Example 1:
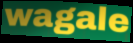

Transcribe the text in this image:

wagale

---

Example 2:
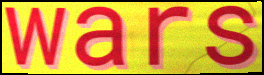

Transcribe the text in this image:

wars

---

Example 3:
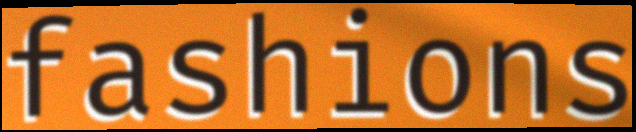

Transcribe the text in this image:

fashions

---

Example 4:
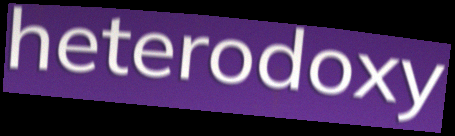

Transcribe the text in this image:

heterodoxy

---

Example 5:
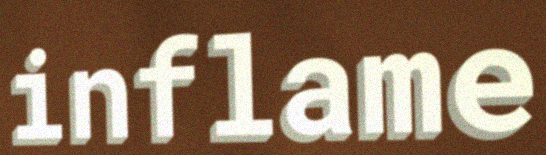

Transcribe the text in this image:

inflame